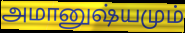
அமானுஷ்யமும்